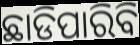
ଛାଡିପାରିବି